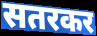
सतरकर